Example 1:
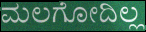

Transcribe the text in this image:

ಮಲಗೋದಿಲ್ಲ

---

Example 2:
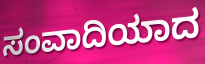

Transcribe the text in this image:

ಸಂವಾದಿಯಾದ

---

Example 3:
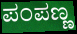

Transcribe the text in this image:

ಪಂಪಣ್ಣ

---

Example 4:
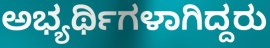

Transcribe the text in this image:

ಅಭ್ಯರ್ಥಿಗಳಾಗಿದ್ದರು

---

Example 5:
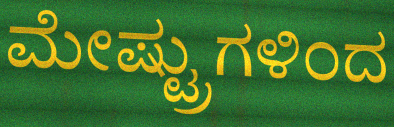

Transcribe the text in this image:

ಮೇಷ್ಟ್ರುಗಳಿಂದ